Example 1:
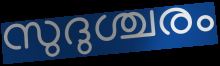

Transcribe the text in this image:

സുദുശ്ചരം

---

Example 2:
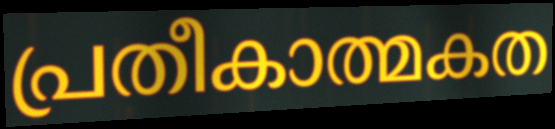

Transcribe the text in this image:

പ്രതീകാത്മകത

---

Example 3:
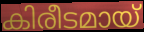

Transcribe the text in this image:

കിരീടമായ്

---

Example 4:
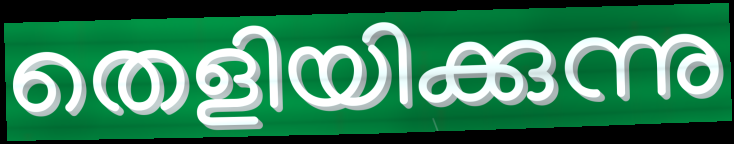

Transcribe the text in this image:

തെളിയിക്കുന്നു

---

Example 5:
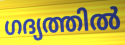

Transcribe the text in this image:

ഗദ്യത്തിൽ